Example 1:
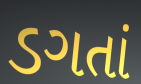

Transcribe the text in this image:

ડગતાં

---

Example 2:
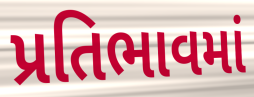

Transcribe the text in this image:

પ્રતિભાવમાં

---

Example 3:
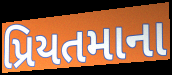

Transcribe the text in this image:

પ્રિયતમાના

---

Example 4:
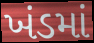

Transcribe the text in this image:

ખંડમાં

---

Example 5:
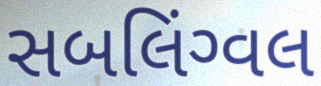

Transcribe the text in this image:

સબલિંગ્વલ